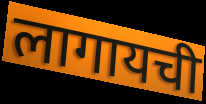
लागायची